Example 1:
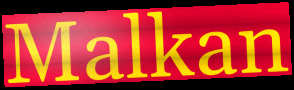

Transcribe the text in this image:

Malkan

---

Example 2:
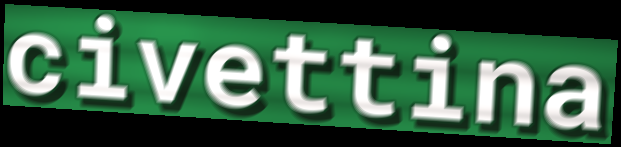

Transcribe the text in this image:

civettina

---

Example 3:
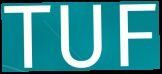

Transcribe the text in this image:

TUF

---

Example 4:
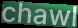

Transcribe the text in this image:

chawl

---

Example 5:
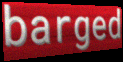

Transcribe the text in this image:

barged